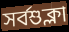
সর্বশুক্লা